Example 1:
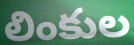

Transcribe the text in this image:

లింకుల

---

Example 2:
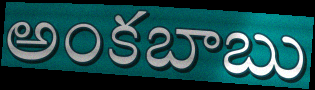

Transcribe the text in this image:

అంకబాబు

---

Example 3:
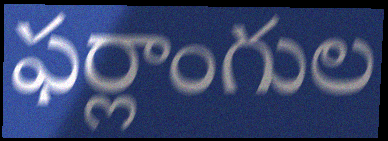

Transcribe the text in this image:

ఫర్లాంగుల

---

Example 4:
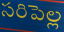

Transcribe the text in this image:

సరిపెల్ల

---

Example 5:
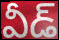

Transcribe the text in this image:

వీడ్